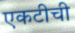
एकटीची